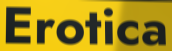
Erotica